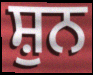
ਸ਼ੁਨ